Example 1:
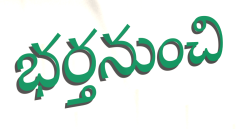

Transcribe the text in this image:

భర్తనుంచి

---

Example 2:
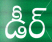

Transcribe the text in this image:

డీర్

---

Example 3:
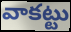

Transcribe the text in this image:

వాకట్టు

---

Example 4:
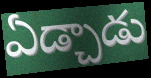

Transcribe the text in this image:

ఏడ్చాడు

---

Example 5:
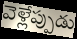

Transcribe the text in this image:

వెళ్లేప్పుడు